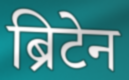
ब्रिटेन